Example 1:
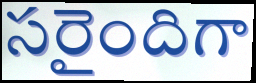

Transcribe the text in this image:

సరైందిగా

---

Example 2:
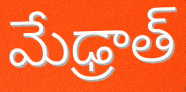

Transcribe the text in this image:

మేఢ్రాత్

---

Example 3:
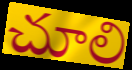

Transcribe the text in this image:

చూలి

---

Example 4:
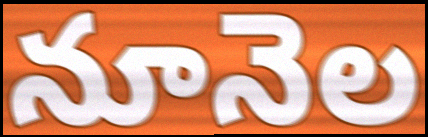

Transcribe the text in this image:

నూనెల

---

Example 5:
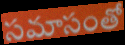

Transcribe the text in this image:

సమాసంతో